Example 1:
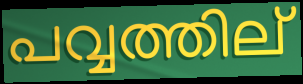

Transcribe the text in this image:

പവ്വത്തില്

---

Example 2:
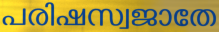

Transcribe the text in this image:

പരിഷസ്വജാതേ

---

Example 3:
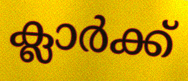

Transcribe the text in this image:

ക്ലാർക്ക്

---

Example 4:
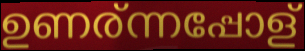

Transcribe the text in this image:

ഉണര്ന്നപ്പോള്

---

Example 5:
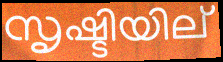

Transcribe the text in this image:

സൃഷ്ടിയില്